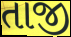
તાજી